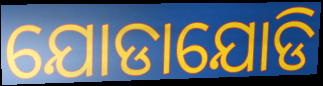
ଯୋଡାଯୋଡି